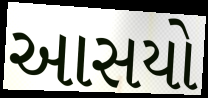
આસયો